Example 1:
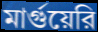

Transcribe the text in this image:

মার্গুয়েরি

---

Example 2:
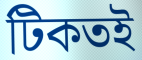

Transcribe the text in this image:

টিকতই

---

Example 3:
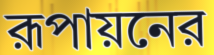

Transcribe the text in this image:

রূপায়নের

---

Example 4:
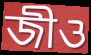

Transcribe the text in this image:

জীও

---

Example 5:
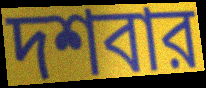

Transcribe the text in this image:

দশবার